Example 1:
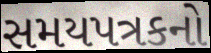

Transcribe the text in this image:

સમયપત્રકનો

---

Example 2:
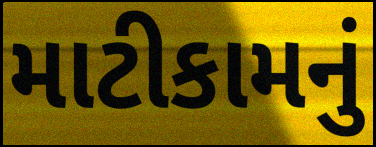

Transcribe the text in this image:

માટીકામનું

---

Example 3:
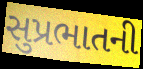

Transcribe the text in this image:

સુપ્રભાતની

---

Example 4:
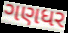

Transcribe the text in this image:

ગણધર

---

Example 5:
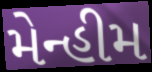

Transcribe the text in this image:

મેન્હીમ